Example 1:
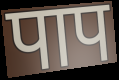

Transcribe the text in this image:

पाप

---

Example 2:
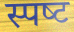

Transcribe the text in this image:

स्‍पष्‍ट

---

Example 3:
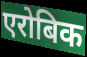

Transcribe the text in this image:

एरोबिक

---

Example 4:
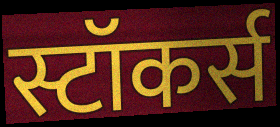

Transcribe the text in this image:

स्टॉकर्स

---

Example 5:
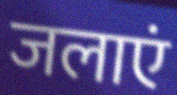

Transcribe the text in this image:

जलाएं